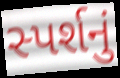
સ્પર્શનું